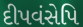
દીપવંસેપિ